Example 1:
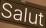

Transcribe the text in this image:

Salut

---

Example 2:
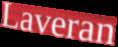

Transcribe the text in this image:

Laveran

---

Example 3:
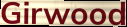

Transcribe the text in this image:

Girwood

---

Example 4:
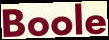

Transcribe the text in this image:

Boole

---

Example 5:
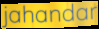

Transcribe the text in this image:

jahandar